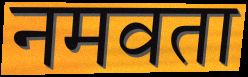
नमवता